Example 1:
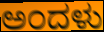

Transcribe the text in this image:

ಅಂದಳು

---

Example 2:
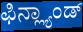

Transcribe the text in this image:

ಫಿನ್ಲ್ಯಾಂಡ್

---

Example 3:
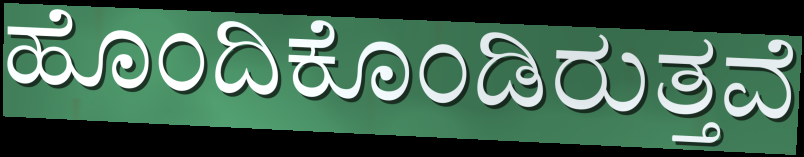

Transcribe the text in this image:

ಹೊಂದಿಕೊಂಡಿರುತ್ತವೆ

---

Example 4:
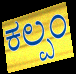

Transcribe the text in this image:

ಕಲ್ಪಂ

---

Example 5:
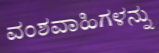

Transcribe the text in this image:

ವಂಶವಾಹಿಗಳನ್ನು